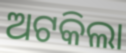
ଅଟକିଲା